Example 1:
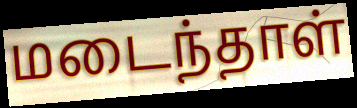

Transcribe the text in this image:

மடைந்தாள்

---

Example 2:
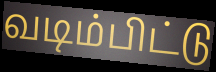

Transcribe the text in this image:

வடிம்பிட்டு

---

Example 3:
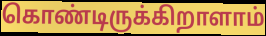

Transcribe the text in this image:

கொண்டிருக்கிறாளாம்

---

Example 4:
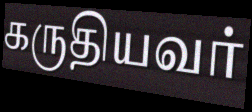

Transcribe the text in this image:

கருதியவர்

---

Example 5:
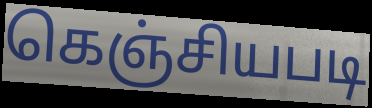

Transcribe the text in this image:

கெஞ்சியபடி